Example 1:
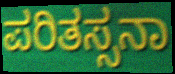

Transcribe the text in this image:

ಪರಿತಸ್ಸನಾ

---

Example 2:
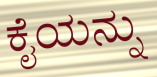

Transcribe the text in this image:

ಕೈಯನ್ನು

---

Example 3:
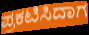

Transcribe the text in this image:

ಪ್ರಕಟಿಸಿದಾಗ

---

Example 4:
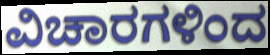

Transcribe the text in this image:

ವಿಚಾರಗಳಿಂದ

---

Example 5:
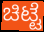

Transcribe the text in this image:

ಚಿಟ್ಟೆ